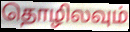
தொழிலவும்